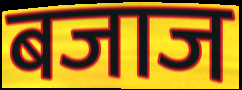
बजाज